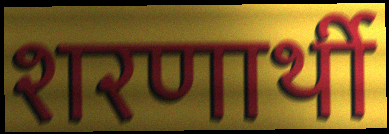
शरणार्थी